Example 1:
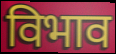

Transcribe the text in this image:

विभाव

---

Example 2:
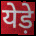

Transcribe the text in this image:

येड़े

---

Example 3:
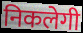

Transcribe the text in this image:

निकलेगी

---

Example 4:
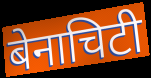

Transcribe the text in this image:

बेनाचिटी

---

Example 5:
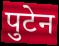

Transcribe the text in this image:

पुटेन